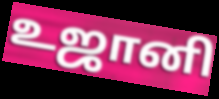
உஜானி